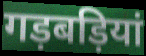
गड़बड़ियां